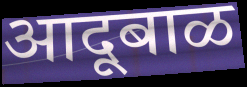
आदूबाळ